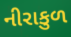
નીરાકુળ